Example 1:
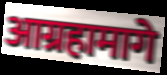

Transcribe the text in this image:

आग्रहामागे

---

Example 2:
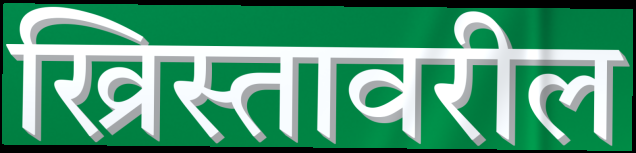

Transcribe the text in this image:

ख्रिस्तावरील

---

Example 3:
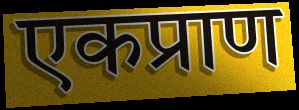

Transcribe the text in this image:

एकप्राण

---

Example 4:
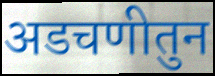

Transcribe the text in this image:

अडचणीतुन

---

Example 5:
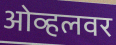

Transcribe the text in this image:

ओव्हलवर